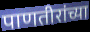
पाणतीरांच्या